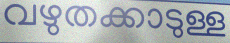
വഴുതക്കാടുള്ള